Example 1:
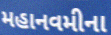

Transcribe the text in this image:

મહાનવમીના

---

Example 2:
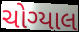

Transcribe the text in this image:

ચોગ્યાલ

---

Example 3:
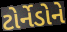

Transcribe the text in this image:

ટોર્નેડોને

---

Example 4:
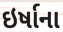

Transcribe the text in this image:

ઇર્ષાના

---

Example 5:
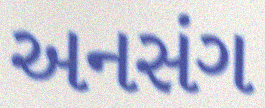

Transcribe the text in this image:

અનસંગ